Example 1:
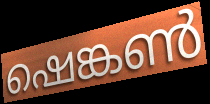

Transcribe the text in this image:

ഷെങ്കൺ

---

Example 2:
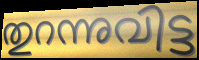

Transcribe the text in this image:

തുറന്നുവിട്ട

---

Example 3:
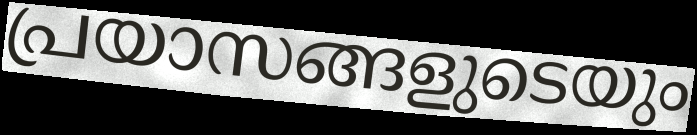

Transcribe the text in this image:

പ്രയാസങ്ങളുടെയും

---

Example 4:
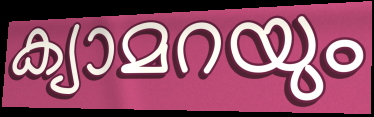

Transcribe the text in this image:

ക്യാമറയും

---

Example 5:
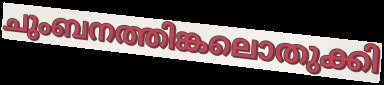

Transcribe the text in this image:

ചുംബനത്തിങ്കലൊതുക്കി